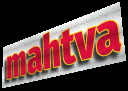
mahtva